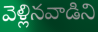
వెళ్లినవాడిని